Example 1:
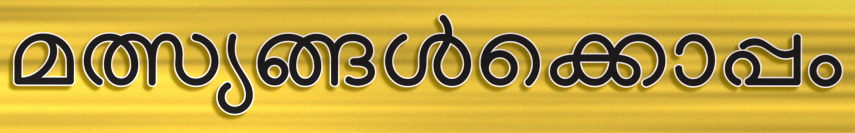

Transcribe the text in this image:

മത്സ്യങ്ങൾക്കൊപ്പം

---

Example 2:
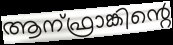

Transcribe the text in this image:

ആന്ഫ്രാങ്കിന്റെ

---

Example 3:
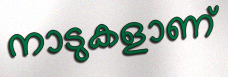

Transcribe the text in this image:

നാടുകളാണ്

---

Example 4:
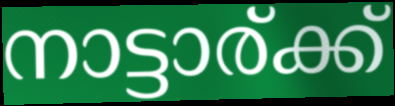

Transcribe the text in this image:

നാട്ടാര്ക്ക്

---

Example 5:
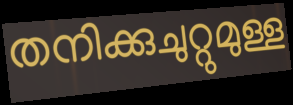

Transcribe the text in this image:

തനിക്കുചുറ്റുമുള്ള